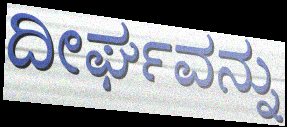
ದೀರ್ಘವನ್ನು